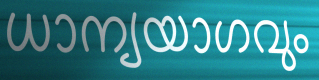
ധാന്യയാഗവും